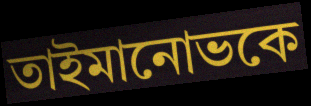
তাইমানোভকে